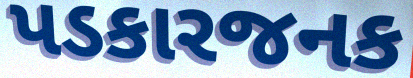
પડકારજનક